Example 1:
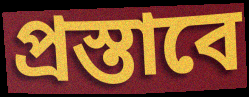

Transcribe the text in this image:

প্রস্তাবে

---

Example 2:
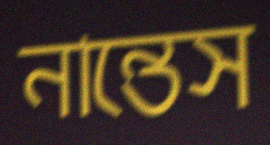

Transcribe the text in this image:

নান্তেস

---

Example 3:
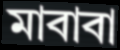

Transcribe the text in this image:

মাবাবা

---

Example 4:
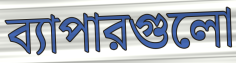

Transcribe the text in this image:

ব্যাপারগুলো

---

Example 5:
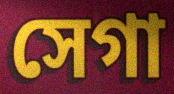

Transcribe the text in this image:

সেগা